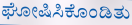
ಘೋಷಿಸಿಕೊಂಡಿತು